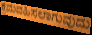
ಕ್ರಮವಹಿಸಲಾಗುವುದು